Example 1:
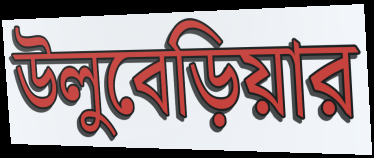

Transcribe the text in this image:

উলুবেড়িয়ার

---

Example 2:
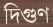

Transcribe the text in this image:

দিগুণ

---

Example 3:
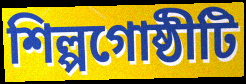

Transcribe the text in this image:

শিল্পগোষ্ঠীটি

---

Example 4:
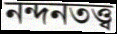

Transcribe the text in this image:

নন্দনতত্ত্ব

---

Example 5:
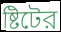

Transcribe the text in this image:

ষ্টিটের